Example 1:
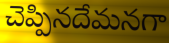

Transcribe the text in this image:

చెప్పినదేమనగా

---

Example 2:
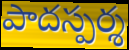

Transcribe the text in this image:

పాదస్పర్శ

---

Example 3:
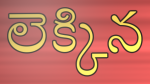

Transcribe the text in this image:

లెక్కిన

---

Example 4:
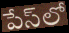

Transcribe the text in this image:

పేస్‌లో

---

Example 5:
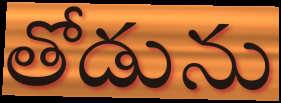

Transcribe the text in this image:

తోడును